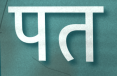
पत